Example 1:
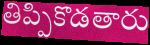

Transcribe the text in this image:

తిప్పికొడతారు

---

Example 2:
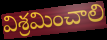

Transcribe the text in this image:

విశ్రమించాలి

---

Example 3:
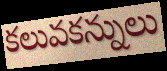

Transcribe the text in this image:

కలువకన్నులు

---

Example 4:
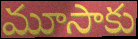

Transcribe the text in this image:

మూసాకు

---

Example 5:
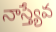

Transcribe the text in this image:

నాస్త్యేవ